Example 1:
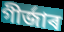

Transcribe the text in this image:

গীৰ্জাৰ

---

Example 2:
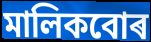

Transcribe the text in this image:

মালিকবোৰ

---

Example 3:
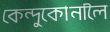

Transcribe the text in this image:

কেন্দুকোনালৈ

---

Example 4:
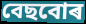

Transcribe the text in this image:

বেছবোৰ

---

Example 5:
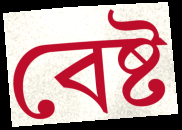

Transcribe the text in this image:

বেষ্ট